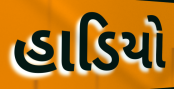
હાડિયો